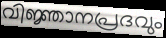
വിജ്ഞാനപ്രദവും